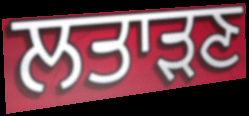
ਲਤਾੜਣ